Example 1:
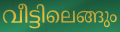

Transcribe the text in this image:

വീട്ടിലെങ്ങും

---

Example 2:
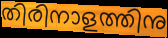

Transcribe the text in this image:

തിരിനാളത്തിനു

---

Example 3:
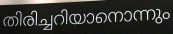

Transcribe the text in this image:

തിരിച്ചറിയാനൊന്നും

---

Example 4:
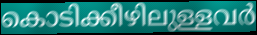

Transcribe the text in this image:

കൊടിക്കീഴിലുള്ളവർ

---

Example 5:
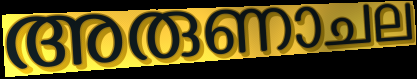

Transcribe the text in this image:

അരുണാചല